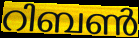
റിബൺ